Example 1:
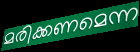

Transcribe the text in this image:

മരിക്കണമെന്ന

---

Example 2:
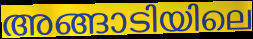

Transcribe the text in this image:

അങ്ങാടിയിലെ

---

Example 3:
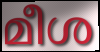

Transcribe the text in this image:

മീശ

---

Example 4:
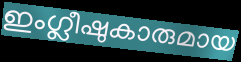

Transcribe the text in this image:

ഇംഗ്ലീഷുകാരുമായ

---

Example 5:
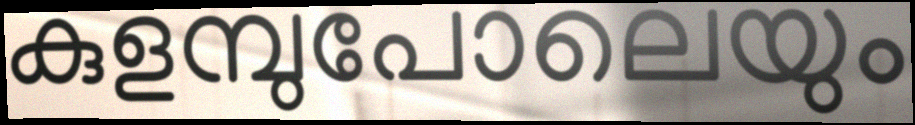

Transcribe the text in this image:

കുളമ്പുപോലെയും